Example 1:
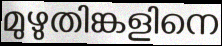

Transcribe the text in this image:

മുഴുതിങ്കളിനെ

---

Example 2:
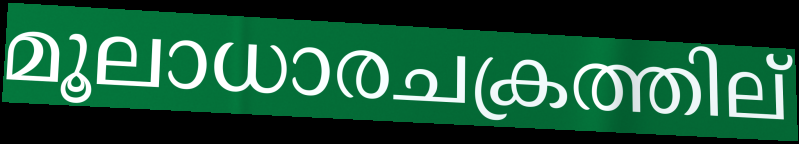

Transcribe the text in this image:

മൂലാധാരചക്രത്തില്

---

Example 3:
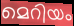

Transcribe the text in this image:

മെറിയം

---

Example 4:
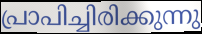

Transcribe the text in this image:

പ്രാപിച്ചിരിക്കുന്നു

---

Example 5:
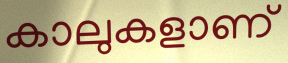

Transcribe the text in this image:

കാലുകളാണ്